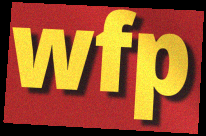
wfp